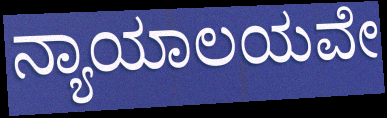
ನ್ಯಾಯಾಲಯವೇ